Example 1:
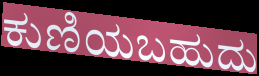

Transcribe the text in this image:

ಕುಣಿಯಬಹುದು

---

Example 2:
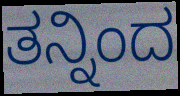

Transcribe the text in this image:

ತನ್ನಿಂದ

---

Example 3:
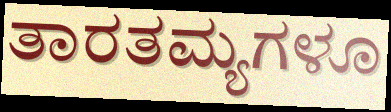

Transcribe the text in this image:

ತಾರತಮ್ಯಗಳೂ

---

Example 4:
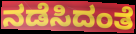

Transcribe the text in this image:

ನಡೆಸಿದಂತೆ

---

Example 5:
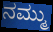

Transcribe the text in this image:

ನಮ್ಮು